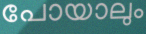
പോയാലും